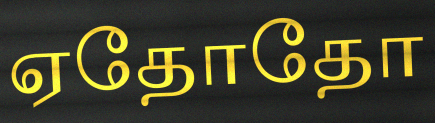
ஏதோதோ